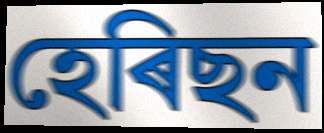
হেৰিছন